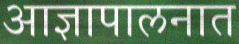
आज्ञापालनात